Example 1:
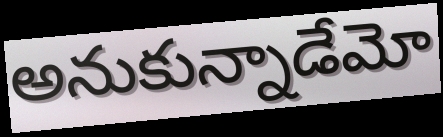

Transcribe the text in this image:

అనుకున్నాడేమో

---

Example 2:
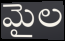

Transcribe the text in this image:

మైల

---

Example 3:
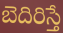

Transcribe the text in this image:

బెదిరిస్తే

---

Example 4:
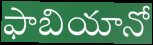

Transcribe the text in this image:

ఫాబియానో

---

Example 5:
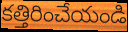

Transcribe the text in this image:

కత్తిరించేయండి